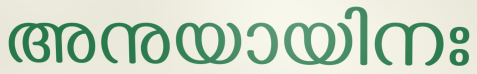
അനുയായിനഃ